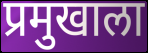
प्रमुखाला